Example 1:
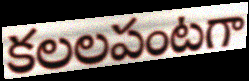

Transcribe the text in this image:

కలలపంటగా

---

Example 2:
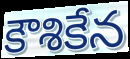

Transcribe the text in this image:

కౌశికేన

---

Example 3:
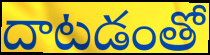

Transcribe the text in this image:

దాటడంతో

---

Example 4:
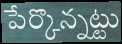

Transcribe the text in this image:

పేర్కొన్నట్టు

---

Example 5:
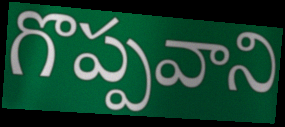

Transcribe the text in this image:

గొప్పవాని